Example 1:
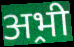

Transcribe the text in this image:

अ्रभी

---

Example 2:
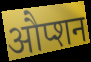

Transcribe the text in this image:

औप्शन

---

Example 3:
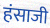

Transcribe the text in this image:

हंसाजी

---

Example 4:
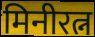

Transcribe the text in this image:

मिनीरत्न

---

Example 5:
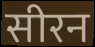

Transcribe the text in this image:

सीरन